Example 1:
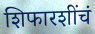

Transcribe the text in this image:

शिफारशींचं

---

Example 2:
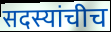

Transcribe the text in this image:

सदस्यांचीच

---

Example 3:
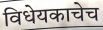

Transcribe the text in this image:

विधेयकाचेच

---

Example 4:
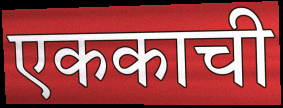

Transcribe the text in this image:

एककाची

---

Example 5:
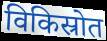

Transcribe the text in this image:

विकिस्रोत